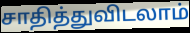
சாதித்துவிடலாம்